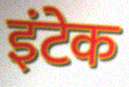
इंटेक